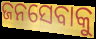
ଜନସେବାକୁ